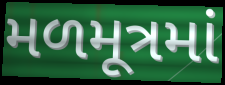
મળમૂત્રમાં